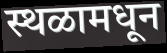
स्थळामधून